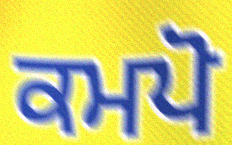
ਕਮਪੋ